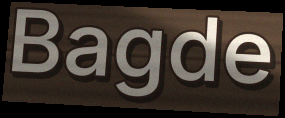
Bagde